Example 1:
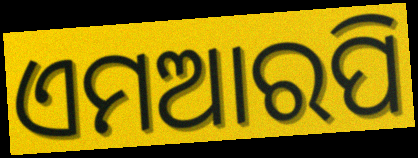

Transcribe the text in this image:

ଏମଆରପି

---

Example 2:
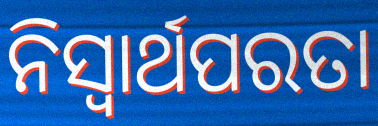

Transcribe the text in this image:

ନିସ୍ଵାର୍ଥପରତା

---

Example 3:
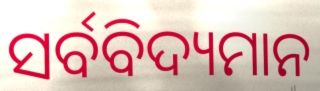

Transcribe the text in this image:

ସର୍ବବିଦ୍ୟମାନ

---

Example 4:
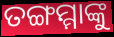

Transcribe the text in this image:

ତଙ୍ଗମ୍ମାଙ୍କୁ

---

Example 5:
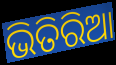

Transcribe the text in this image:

ଭିତିରିଆ